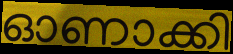
ഓണാക്കി